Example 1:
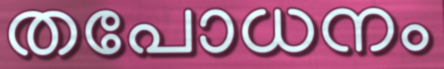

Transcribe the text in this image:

തപോധനം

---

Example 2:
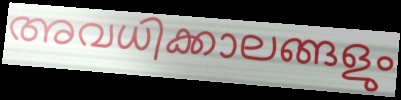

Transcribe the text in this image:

അവധിക്കാലങ്ങളും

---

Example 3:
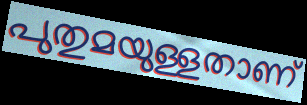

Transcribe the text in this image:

പുതുമയുള്ളതാണ്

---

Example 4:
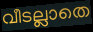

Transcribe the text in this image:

വീടല്ലാതെ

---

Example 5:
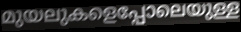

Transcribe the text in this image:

മുയലുകളെപ്പോലെയുള്ള